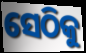
ସେଠିକୁ